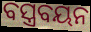
ବସ୍ତ୍ରବୟନ